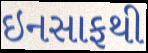
ઇનસાફથી